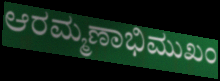
ಆರಮ್ಮಣಾಭಿಮುಖಂ